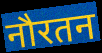
नौरतन